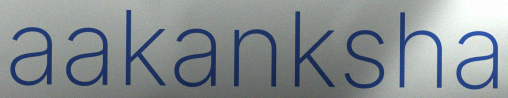
aakanksha